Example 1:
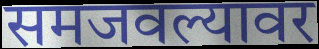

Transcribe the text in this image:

समजवल्यावर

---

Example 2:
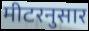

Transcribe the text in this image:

मीटरनुसार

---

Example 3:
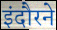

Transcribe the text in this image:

इंदौरने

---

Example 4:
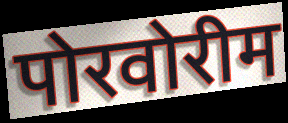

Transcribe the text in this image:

पोरवोरीम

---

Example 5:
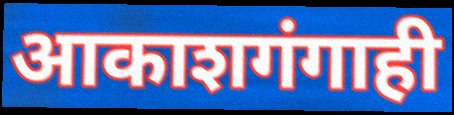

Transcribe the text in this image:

आकाशगंगाही